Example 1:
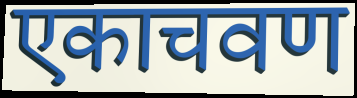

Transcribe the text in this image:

एकाचवण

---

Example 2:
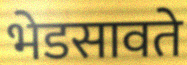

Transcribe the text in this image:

भेडसावते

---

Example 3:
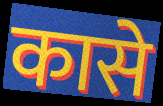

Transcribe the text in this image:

कासे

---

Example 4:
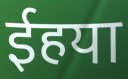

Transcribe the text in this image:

ईहया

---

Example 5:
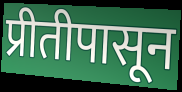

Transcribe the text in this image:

प्रीतीपासून